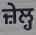
ਜ਼ੇਲ੍ਹ